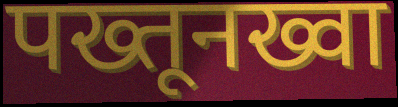
पख्तूनख्वा